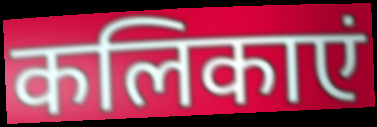
कलिकाएं